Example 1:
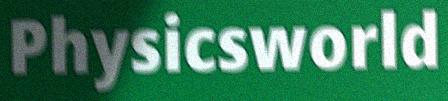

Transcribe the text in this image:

Physicsworld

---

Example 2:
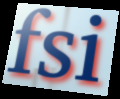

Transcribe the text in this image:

fsi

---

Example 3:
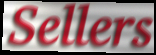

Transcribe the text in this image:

Sellers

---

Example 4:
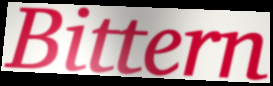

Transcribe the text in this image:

Bittern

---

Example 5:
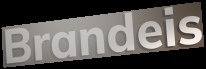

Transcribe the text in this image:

Brandeis